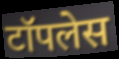
टॉपलेस